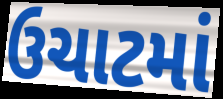
ઉચાટમાં